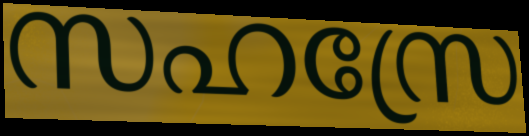
സഹസ്രേ